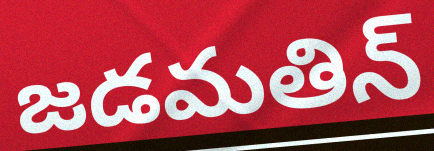
జడమతిన్